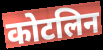
कोटलिन